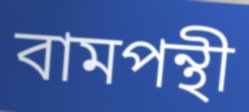
বামপন্থী